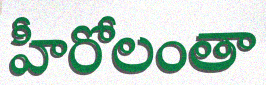
హీరోలంతా